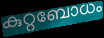
കുറ്റബോധം